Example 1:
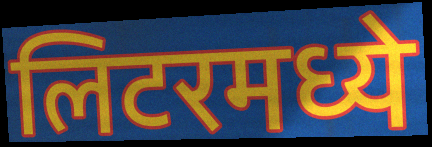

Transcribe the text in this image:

लिटरमध्ये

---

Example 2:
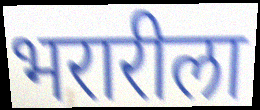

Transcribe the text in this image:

भरारीला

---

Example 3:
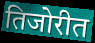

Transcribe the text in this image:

तिजोरीत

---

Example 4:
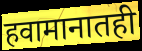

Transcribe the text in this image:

हवामानातही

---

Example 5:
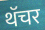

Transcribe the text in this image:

थॅचर